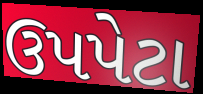
ઉપપેટા